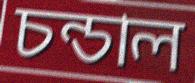
চন্ডাল